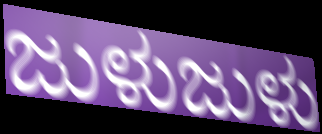
ಜುಳುಜುಳು